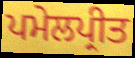
ਪਮੇਲਪ੍ਰੀਤ